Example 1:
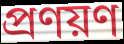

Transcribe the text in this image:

প্ৰণয়ণ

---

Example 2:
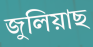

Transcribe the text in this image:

জুলিয়াছ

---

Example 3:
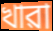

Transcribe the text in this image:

খাৱা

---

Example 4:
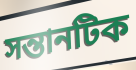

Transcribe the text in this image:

সন্তানটিক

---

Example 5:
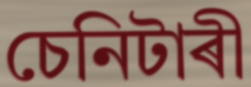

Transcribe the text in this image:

চেনিটাৰী